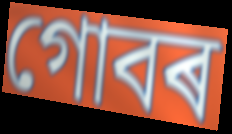
গোবৰ